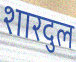
शारदुल